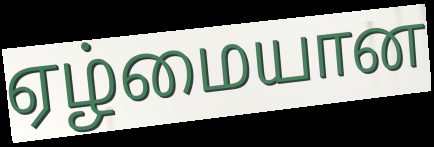
ஏழ்மையான